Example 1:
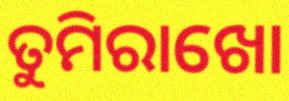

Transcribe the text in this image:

ତୁମିରାଖୋ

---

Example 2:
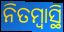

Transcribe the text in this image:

ନିତମ୍ବାସ୍ଥି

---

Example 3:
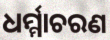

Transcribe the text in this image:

ଧର୍ମ୍ମାଚରଣ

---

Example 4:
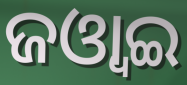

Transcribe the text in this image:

ଜଓ୍ବାଇ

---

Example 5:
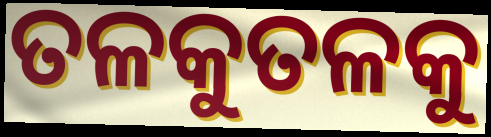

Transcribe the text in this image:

ତଳକୁତଳକୁ